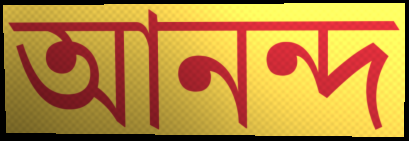
আনন্দ